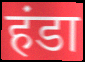
हंडा